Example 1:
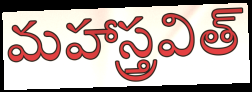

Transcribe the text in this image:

మహాస్త్రవిత్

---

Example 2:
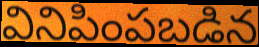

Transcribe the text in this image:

వినిపింపబడిన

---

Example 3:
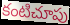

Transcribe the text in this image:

కంటిచూపు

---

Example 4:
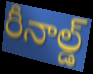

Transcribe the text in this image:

రీనాల్డ్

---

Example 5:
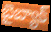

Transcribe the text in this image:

బైబ్యాక్